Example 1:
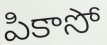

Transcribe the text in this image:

పికాసో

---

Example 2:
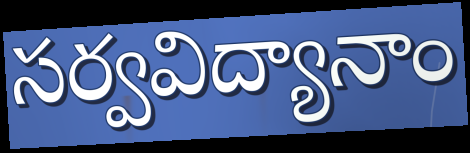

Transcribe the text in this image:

సర్వవిద్యానాం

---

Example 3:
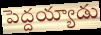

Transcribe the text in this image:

పెద్దయ్యాడు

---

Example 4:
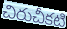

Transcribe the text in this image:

చిరుచీకటి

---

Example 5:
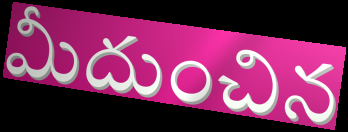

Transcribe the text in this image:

మీదుంచిన